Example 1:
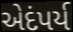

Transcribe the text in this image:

એદંપર્ય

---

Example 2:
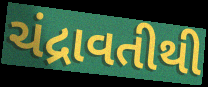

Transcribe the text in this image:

ચંદ્રાવતીથી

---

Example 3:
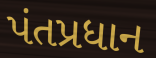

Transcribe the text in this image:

પંતપ્રધાન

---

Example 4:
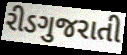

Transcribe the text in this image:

રીડગુજરાતી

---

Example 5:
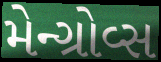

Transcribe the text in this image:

મેન્ગ્રોવ્સ